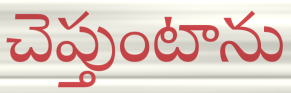
చెప్తుంటాను